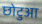
छोटुआ